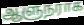
ஆளுநராக